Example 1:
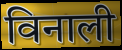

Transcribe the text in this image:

विनाली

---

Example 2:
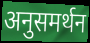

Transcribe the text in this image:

अनुसमर्थन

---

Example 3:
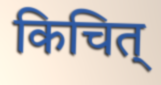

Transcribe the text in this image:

किचित्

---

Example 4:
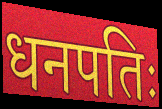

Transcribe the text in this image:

धनपतिः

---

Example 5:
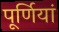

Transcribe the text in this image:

पूर्णियां